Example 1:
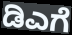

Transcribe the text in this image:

ಡಿಎಗೆ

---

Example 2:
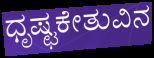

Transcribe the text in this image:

ಧೃಷ್ಟಕೇತುವಿನ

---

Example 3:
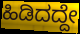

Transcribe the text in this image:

ಹಿಡಿದದ್ದೇ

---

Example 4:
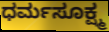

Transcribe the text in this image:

ಧರ್ಮಸೂಕ್ಷ್ಮ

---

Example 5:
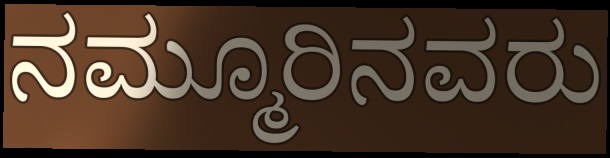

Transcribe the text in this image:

ನಮ್ಮೂರಿನವರು